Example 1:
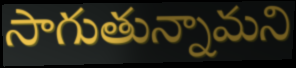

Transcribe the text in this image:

సాగుతున్నామని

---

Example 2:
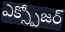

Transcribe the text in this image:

ఎక్స్పోజర్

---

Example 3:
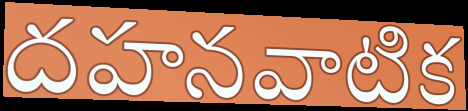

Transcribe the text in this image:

దహనవాటిక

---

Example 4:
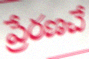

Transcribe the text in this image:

ప్రేరణచే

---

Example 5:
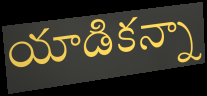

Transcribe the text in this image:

యాడికన్నా